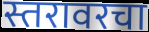
स्तरावरचा